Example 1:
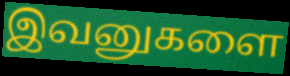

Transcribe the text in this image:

இவனுகளை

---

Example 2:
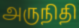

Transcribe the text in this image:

அருநிதி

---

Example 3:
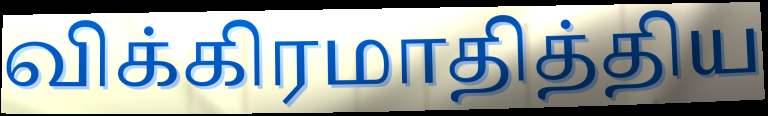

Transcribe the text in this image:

விக்கிரமாதித்திய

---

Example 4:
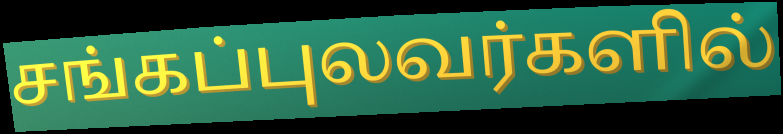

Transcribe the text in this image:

சங்கப்புலவர்களில்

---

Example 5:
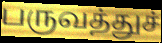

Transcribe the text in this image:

பருவத்துச்